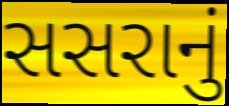
સસરાનું